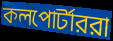
কলপোর্টাররা